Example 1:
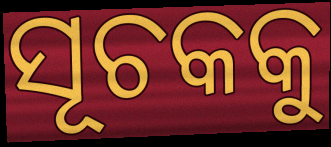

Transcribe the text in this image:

ସୂଚକକୁ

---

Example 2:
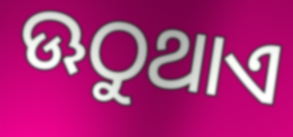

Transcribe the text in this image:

ଊଠୁଥାଏ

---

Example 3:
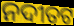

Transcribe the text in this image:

ନଦୀତଟ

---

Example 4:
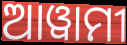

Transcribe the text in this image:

ଆୱାମୀ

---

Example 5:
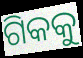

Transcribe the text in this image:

ଗିକକୁ